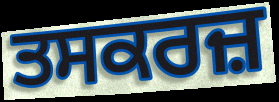
ਤਸਕਰਜ਼